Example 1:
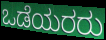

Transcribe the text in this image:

ಒಡೆಯರರು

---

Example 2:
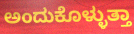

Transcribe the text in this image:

ಅಂದುಕೊಳ್ಳುತ್ತಾ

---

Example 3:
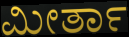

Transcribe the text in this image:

ಮೀರ್ತಾ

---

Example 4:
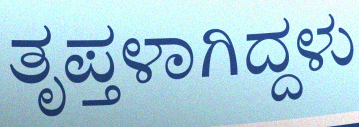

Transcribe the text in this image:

ತೃಪ್ತಳಾಗಿದ್ದಳು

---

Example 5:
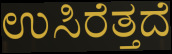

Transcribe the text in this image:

ಉಸಿರೆತ್ತದೆ